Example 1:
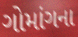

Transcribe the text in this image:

ગોમાંગના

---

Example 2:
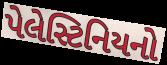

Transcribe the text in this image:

પેલેસ્ટિનિયનો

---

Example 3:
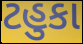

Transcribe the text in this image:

ટહુકા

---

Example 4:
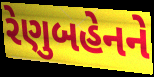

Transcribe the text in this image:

રેણુબહેનને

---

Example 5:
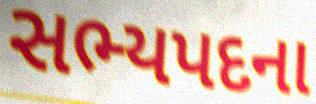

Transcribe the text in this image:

સભ્યપદના